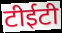
टीईटी